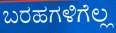
ಬರಹಗಳಿಗೆಲ್ಲ